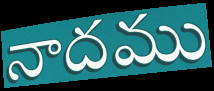
నాదము